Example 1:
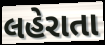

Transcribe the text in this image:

લહેરાતા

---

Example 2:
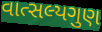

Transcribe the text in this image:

વાત્સલ્યગુણ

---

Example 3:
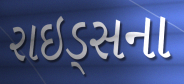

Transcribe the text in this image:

રાઇડ્સના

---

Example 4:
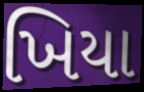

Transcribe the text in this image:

ખિયા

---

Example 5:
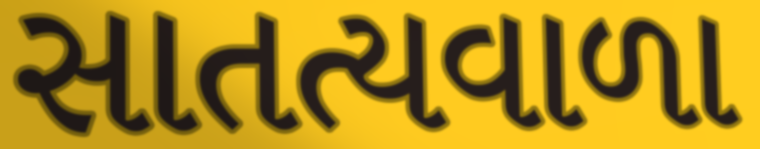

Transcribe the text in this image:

સાતત્યવાળા